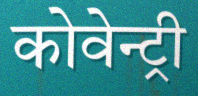
कोवेन्ट्री